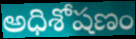
అధిశోషణం